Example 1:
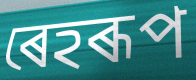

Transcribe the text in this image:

ৰেহৰূপ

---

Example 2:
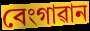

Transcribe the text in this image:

বেংগাৱান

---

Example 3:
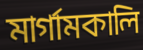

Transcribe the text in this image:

মাৰ্গামকালি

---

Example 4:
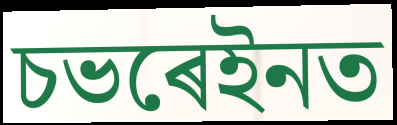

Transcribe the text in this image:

চভৰেইনত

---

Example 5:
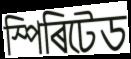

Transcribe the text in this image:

স্পিৰিটেড